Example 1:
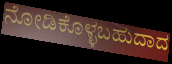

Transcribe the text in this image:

ನೋಡಿಕೊಳ್ಳಬಹುದಾದ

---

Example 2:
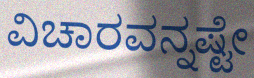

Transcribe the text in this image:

ವಿಚಾರವನ್ನಷ್ಟೇ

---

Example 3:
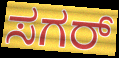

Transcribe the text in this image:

ಸಗರ್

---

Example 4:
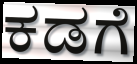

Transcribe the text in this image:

ಕಡಗೆ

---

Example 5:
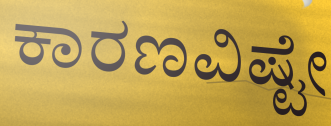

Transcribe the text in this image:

ಕಾರಣವಿಷ್ಟೇ